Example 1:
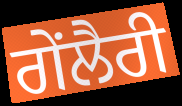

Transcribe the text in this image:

ਗੇਂਲੈਰੀ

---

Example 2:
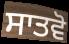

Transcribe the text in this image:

ਸਾਤਵੋ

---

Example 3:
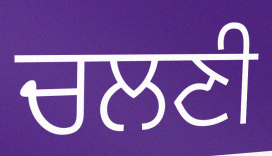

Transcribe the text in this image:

ਚਲਣੀ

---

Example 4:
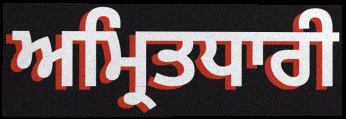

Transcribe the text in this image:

ਅਮ੍ਰਿਤਧਾਰੀ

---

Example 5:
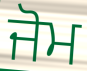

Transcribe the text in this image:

ਜੋਮ